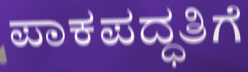
ಪಾಕಪದ್ಧತಿಗೆ